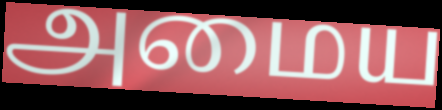
அமைய